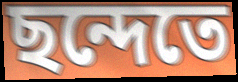
ছন্দেতে